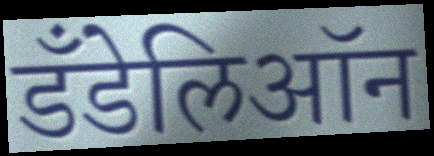
डँडेलिऑन